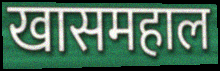
खासमहाल